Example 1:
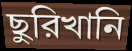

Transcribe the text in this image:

ছুরিখানি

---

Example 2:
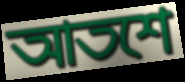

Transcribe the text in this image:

আতশে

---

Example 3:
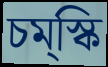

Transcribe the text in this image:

চম্‌স্কি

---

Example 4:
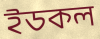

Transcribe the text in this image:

ইডকল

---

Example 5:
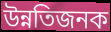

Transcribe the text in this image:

উন্নতিজনক